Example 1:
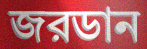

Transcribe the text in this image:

জরডান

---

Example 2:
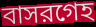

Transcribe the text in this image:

বাসরগেহ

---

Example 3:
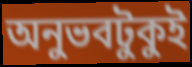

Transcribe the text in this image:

অনুভবটুকুই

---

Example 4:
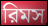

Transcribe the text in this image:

রিমস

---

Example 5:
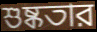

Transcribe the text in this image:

শুষ্কতার